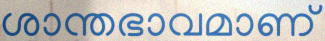
ശാന്തഭാവമാണ്